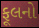
ફૂલનો